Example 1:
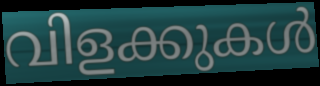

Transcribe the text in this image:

വിളക്കുകൾ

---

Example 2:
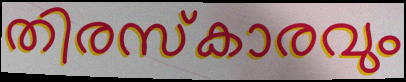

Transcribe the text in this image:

തിരസ്കാരവും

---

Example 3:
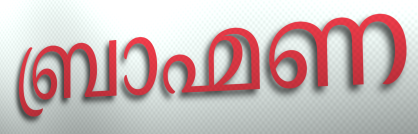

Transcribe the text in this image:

ബ്രാഹ്മണ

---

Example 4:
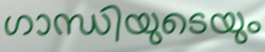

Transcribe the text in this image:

ഗാന്ധിയുടെയും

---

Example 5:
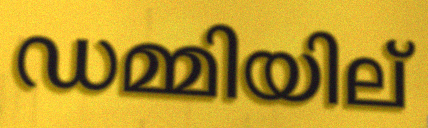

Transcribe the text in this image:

ഡമ്മിയില്